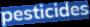
pesticides